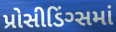
પ્રોસીડિંગ્સમાં